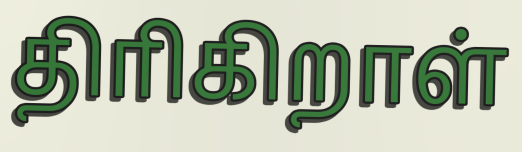
திரிகிறாள்